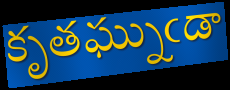
కృతఘ్నుఁడా